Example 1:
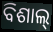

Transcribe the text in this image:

ବିଶାଲ୍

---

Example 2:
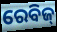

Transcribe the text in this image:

ରେବିଜ୍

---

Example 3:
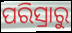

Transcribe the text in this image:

ପରିସ୍ରାରୁ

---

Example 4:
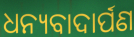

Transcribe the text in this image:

ଧନ୍ୟବାଦାର୍ପଣ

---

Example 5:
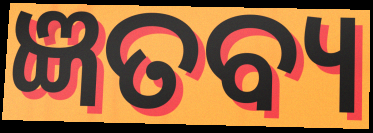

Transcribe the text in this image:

ଜ୍ଞତବ୍ୟ